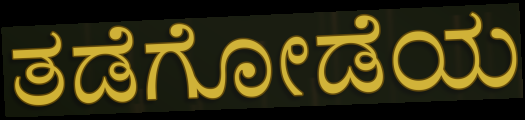
ತಡೆಗೋಡೆಯ